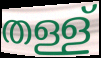
തള്ള്